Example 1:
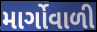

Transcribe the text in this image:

માર્ગોવાળી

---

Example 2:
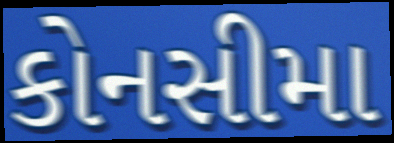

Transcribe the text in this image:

કોનસીમા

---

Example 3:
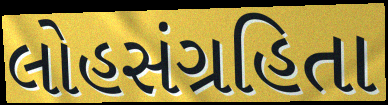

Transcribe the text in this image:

લોહસંગ્રહિતા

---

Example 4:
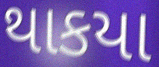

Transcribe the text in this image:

થાકયા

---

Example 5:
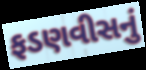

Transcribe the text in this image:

ફડણવીસનું